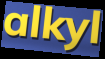
alkyl